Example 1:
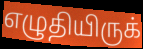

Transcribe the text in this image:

எழுதியிருக்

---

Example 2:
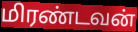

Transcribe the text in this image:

மிரண்டவன்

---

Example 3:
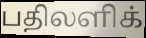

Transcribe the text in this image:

பதிலளிக்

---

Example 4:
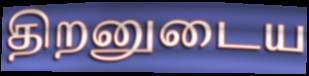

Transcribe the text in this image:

திறனுடைய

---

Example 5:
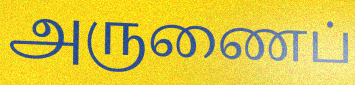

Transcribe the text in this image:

அருணைப்